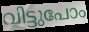
വിട്ടുപോം